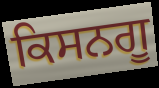
ਕਿਸਨਗੂ